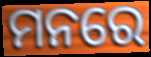
ମନରେ